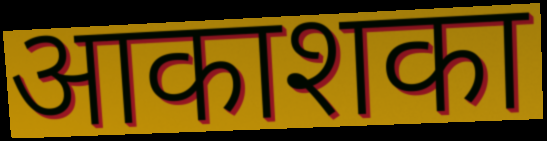
आकाशका